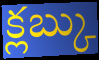
క్లబ్కు